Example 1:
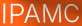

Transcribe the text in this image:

IPAMC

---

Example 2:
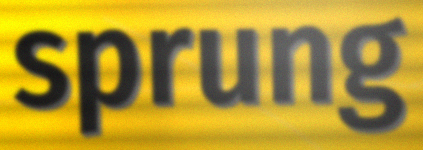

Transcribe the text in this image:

sprung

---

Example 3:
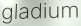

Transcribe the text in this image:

gladium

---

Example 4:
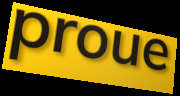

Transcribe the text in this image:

proue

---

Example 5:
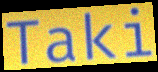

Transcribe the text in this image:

Taki